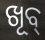
ଖୂବ୍